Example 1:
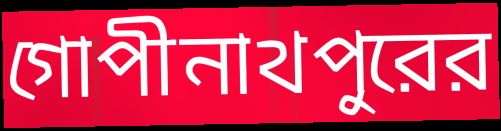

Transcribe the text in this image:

গোপীনাথপুরের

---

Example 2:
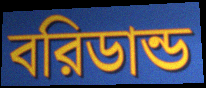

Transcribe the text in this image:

বরিডান্ড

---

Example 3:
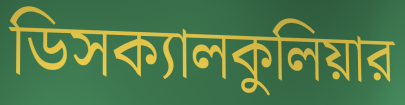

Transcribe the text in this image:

ডিসক্যালকুলিয়ার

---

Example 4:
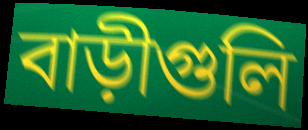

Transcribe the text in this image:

বাড়ীগুলি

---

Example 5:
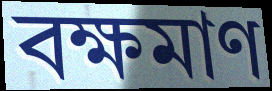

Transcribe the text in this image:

বক্ষমাণ